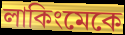
লাকিংমেকে